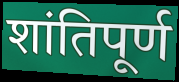
शांतिपूर्ण